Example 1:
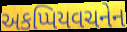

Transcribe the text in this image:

અકપ્પિયવચનેન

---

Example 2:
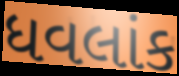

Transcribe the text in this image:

ધવલાંક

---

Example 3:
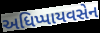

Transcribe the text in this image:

અધિપ્પાયવસેન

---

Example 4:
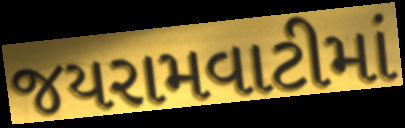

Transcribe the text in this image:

જયરામવાટીમાં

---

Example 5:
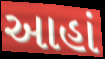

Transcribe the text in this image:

આહાં